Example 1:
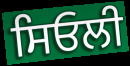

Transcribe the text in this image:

ਸਿਓਲੀ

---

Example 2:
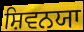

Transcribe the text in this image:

ਸ਼ਿਵਨਯਾ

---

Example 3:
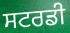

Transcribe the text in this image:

ਸਟਰਡੀ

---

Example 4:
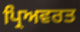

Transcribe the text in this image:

ਪ੍ਰਿਅਵਰਤ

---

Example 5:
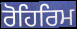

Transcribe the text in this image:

ਰੋਹਿਰਿਮ